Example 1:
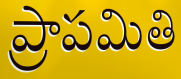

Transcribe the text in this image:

ప్రాపమితి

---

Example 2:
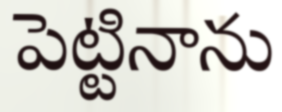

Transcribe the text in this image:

పెట్టినాను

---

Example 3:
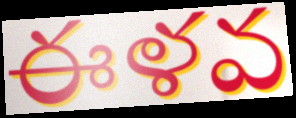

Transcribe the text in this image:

ఈళవ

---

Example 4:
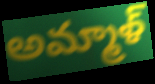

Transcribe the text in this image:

అమ్మాళ్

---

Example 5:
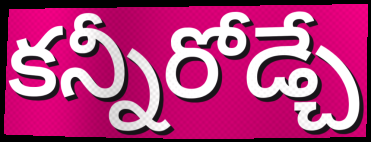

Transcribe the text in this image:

కన్నీరోడ్చే